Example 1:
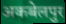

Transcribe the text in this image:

अकबेलपुर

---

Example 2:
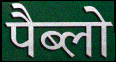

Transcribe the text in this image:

पैब्लो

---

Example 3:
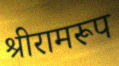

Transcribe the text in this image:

श्रीरामरूप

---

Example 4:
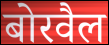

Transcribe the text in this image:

बोरवैल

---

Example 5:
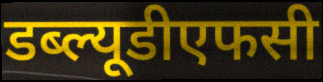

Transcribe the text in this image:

डब्ल्यूडीएफसी